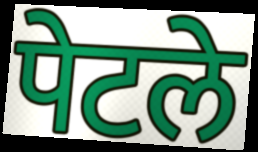
पेटले